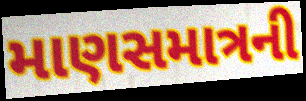
માણસમાત્રની